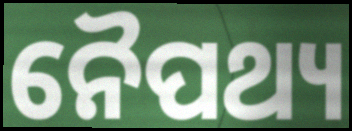
ନୈପଥ୍ୟ